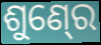
ଶୁଣ୍‍ରେ